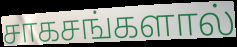
சாகசங்களால்